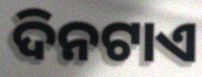
ଦିନଟାଏ